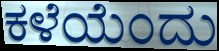
ಕಳೆಯೆಂದು